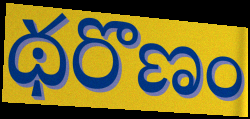
థరొణం